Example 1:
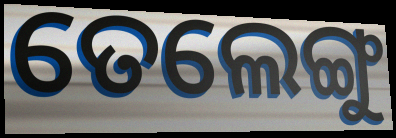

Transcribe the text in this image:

ତେଲେଙ୍ଗୁ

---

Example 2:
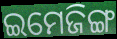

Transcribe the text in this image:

ଇମେଜିଙ୍ଗ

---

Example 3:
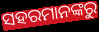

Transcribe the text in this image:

ସହରମାନଙ୍କରୁ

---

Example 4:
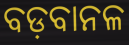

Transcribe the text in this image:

ବଡ଼ବାନଳ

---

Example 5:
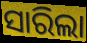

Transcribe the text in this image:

ସାରିଲା